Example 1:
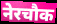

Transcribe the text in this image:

नेरचौक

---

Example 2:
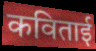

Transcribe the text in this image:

कविताई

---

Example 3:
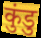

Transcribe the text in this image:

कुंडु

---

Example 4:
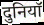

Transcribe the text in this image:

दुनियॉ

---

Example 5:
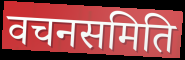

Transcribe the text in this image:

वचनसमिति